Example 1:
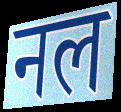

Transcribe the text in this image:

नल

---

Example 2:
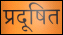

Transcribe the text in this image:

प्रदूषित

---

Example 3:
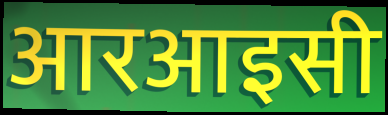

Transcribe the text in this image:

आरआइसी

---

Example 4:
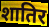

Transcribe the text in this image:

शातिर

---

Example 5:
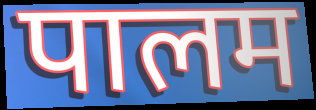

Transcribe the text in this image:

पालम